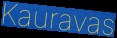
Kauravas